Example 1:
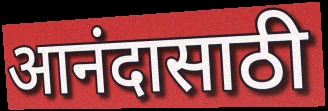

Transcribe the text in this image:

आनंदासाठी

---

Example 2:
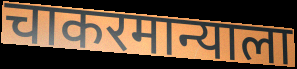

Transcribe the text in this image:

चाकरमान्याला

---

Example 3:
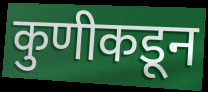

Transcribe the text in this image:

कुणीकडून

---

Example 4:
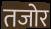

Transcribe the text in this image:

तजोर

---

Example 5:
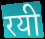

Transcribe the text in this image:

रयी